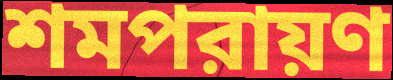
শমপরায়ণ